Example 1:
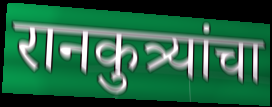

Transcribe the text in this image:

रानकुत्र्यांचा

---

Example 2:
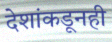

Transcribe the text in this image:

देशांकडूनही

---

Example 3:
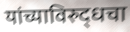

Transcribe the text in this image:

यांच्याविरुद्धचा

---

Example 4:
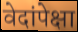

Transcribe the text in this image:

वेदांपेक्षा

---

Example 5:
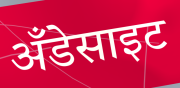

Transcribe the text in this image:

अँडेसाइट